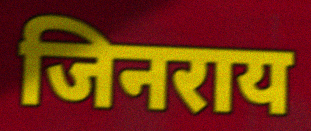
जिनराय